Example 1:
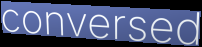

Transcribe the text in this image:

conversed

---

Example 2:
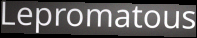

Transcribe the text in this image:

Lepromatous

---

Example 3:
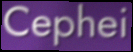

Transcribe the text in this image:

Cephei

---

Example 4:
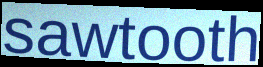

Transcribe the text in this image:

sawtooth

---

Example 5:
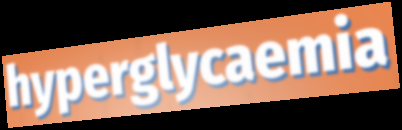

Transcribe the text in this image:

hyperglycaemia